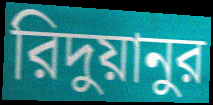
রিদুয়ানুর